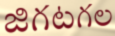
జిగటగల